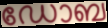
ഡോബ